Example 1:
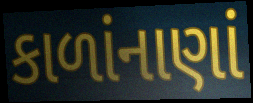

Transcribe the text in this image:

કાળાંનાણાં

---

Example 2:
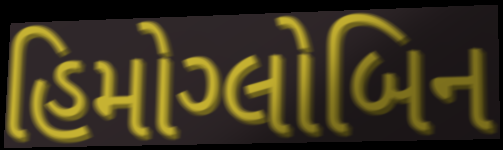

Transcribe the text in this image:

હિમોગ્લોબિન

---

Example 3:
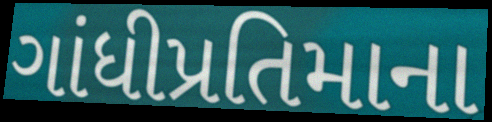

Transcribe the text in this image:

ગાંધીપ્રતિમાના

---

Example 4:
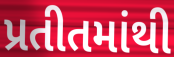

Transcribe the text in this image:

પ્રતીતમાંથી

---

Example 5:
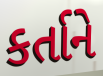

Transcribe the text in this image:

કર્તાને